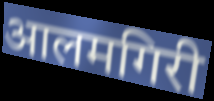
आलमगिरी